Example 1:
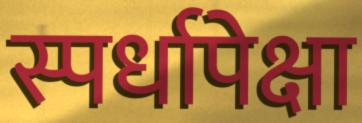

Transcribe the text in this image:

स्पर्धापेक्षा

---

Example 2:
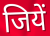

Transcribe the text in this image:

जियें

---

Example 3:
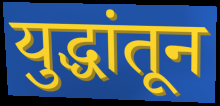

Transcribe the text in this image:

युद्धांतून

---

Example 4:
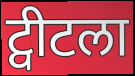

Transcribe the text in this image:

ट्वीटला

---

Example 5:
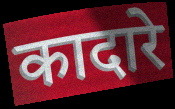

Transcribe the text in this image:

कादारे